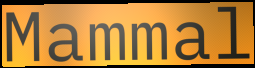
Mammal